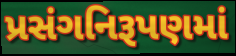
પ્રસંગનિરૂપણમાં